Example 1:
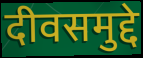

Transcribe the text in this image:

दीवसमुद्दे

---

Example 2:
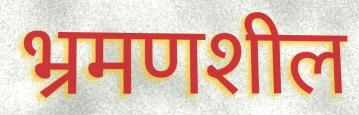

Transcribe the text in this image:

भ्रमणशील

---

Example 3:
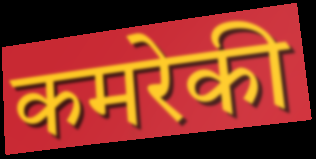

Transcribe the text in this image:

कमरेकी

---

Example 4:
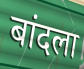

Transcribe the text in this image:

बांदला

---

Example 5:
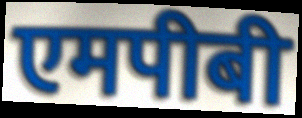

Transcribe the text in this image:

एमपीबी